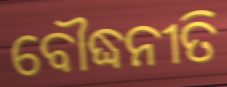
ବୌଦ୍ଧନୀତି